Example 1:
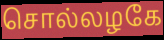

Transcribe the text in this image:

சொல்லழகே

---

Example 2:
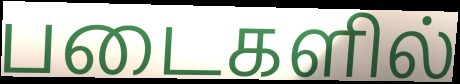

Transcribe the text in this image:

படைகளில்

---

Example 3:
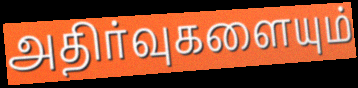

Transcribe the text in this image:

அதிர்வுகளையும்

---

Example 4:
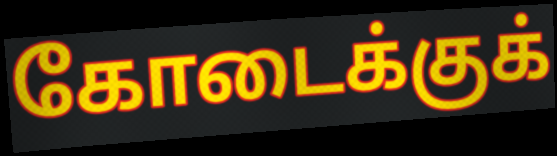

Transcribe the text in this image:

கோடைக்குக்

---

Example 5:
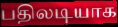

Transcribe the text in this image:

பதிலடியாக